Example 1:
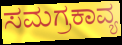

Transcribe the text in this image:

ಸಮಗ್ರಕಾವ್ಯ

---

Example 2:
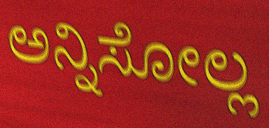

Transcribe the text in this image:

ಅನ್ನಿಸೋಲ್ಲ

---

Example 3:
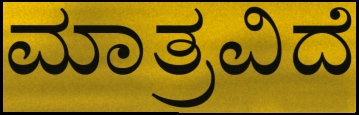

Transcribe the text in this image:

ಮಾತ್ರವಿದೆ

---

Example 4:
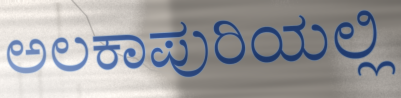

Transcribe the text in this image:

ಅಲಕಾಪುರಿಯಲ್ಲಿ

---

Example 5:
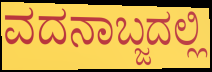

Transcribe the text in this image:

ವದನಾಬ್ಜದಲ್ಲಿ